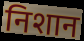
निशान